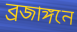
ব্রজাঙ্গনে